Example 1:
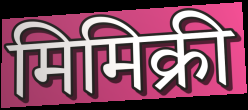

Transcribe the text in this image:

मिमिक्री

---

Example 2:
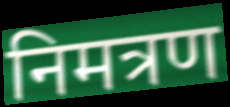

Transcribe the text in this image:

निमत्रण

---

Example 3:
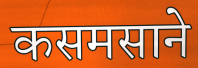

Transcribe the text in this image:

कसमसाने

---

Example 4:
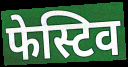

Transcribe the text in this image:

फेस्टिव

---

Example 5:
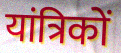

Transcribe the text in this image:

यांत्रिकों